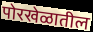
पोरखेळातील